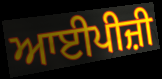
ਆਈਪੀਜ਼ੀ